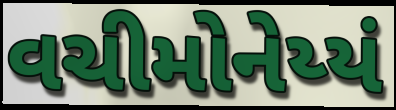
વચીમોનેય્યં